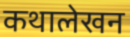
कथालेखन